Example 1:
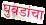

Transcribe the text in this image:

घुबडांचा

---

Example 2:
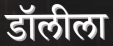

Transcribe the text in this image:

डॉलीला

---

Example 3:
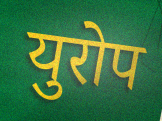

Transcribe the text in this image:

युरोप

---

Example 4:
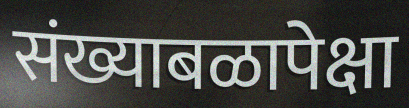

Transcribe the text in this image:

संख्याबळापेक्षा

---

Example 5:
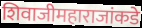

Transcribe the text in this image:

शिवाजीमहाराजांकडे